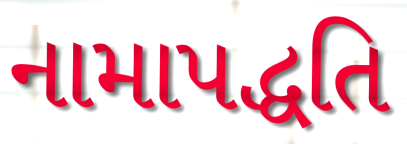
નામાપદ્ધતિ